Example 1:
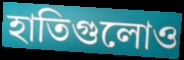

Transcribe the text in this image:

হাতিগুলোও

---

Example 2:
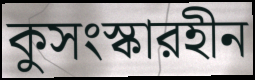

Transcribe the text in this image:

কুসংস্কারহীন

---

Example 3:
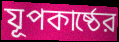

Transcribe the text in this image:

যূপকাষ্ঠের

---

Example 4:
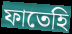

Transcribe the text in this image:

ফাতেহি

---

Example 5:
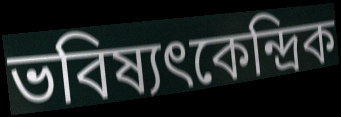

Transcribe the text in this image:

ভবিষ্যৎকেন্দ্রিক